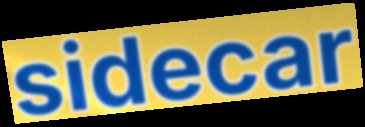
sidecar